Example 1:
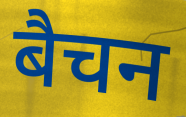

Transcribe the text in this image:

बैचन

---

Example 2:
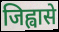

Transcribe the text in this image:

जिह्वासे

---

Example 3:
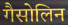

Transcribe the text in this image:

गैसोलिन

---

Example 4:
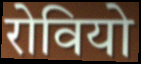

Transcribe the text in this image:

रोवियो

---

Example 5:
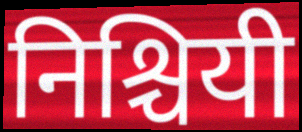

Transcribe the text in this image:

निश्चियी